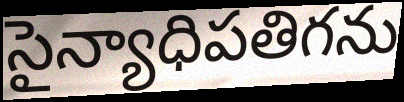
సైన్యాధిపతిగను